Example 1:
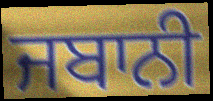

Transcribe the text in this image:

ਜਬਾਨੀ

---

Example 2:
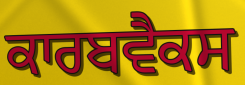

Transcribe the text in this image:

ਕਾਰਬਵੈਕਸ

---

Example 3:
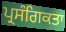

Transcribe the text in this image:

ਪ੍ਰਸੰਗਿਕਤਾ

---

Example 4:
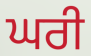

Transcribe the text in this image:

ਘਰੀ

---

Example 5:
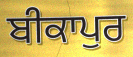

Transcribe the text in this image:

ਬੀਕਾਪੁਰ